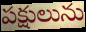
పక్షులును